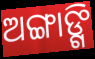
ଅଙ୍ଗାଙ୍ଗି